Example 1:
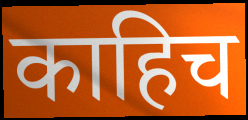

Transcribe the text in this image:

काहिच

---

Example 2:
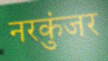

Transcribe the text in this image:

नरकुंजर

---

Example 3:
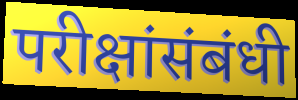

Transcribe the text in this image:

परीक्षांसंबंधी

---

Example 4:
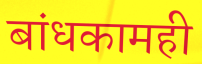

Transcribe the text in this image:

बांधकामही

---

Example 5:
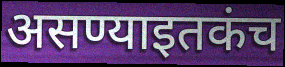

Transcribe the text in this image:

असण्याइतकंच